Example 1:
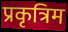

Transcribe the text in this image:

प्रकृत्रिम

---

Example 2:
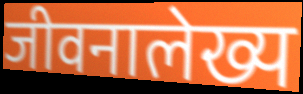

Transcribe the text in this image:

जीवनालेख्य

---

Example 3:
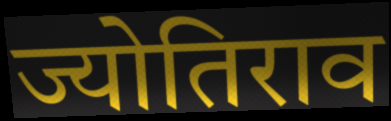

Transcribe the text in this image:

ज्‍योतिराव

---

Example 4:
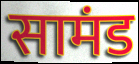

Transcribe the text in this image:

सामंड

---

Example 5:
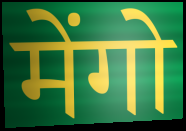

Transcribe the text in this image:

मेंगो